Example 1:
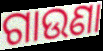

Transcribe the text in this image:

ଗାଉଣା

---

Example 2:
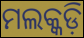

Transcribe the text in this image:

ମଲକ୍କଡ଼ି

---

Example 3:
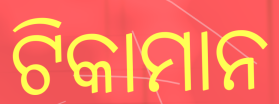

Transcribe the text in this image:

ଟିକାମାନ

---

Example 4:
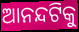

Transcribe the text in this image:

ଆନନ୍ଦଟିକୁ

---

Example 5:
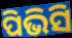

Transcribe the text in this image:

ପିଭିସି